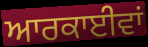
ਆਰਕਾਈਵਾਂ